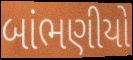
બાંભણીયો